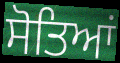
ਸੋਤਿਆਂ